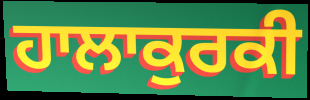
ਹਾਲਾਕੁਰਕੀ